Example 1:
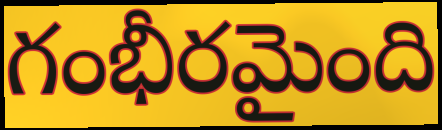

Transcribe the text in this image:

గంభీరమైంది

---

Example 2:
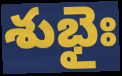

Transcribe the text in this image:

శుభైః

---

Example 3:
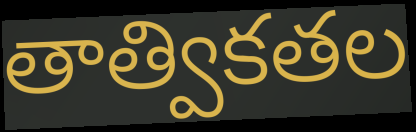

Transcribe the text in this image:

తాత్వికతల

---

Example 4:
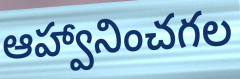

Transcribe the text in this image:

ఆహ్వానించగల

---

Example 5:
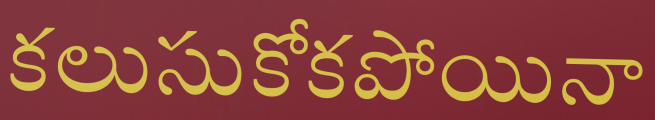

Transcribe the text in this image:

కలుసుకోకపోయినా